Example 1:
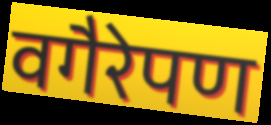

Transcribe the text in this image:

वगैरेपण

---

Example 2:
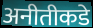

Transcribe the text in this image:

अनीतीकडे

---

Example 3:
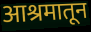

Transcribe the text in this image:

आश्रमातून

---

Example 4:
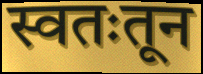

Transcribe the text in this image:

स्वतःतून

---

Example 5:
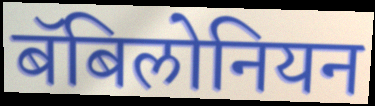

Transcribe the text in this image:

बॅबिलोनियन